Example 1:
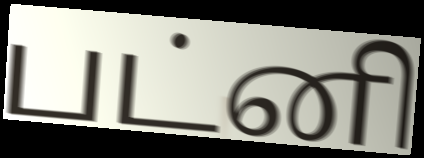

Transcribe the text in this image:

பட்னி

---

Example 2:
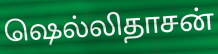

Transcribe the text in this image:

ஷெல்லிதாசன்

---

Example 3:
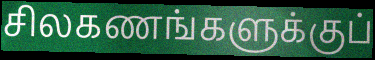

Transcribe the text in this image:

சிலகணங்களுக்குப்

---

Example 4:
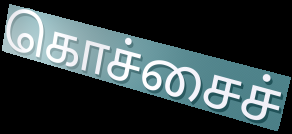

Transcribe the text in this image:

கொச்சைச்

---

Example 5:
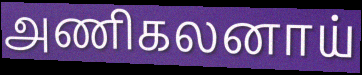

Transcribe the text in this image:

அணிகலனாய்